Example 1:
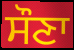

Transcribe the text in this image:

ਸੌਣਾ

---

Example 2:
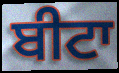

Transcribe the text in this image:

ਬੀਟਾ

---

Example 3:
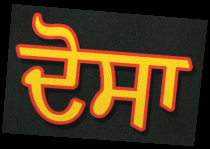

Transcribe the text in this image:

ਦੋਸਾ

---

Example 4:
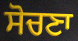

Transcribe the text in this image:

ਸੋਚਣਾ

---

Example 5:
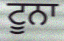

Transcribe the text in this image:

ਟੂਨਾ